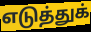
எடுத்துக்